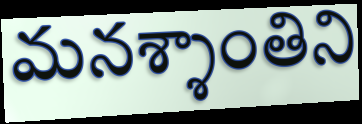
మనశ్శాంతిని